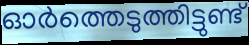
ഓർത്തെടുത്തിട്ടുണ്ട്